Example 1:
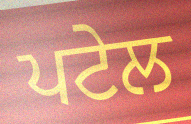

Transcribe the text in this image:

ਪਟੇਲ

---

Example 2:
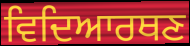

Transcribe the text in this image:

ਵਿਦਿਆਰਥਣ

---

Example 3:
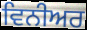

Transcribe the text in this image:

ਵਿਨੀਅਰ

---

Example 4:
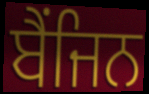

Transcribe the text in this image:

ਬੈਂਜਿਨ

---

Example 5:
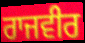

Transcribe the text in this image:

ਰਾਜਵੀਰ